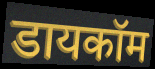
डायकॉम